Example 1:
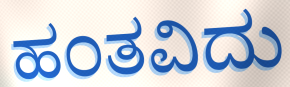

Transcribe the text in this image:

ಹಂತವಿದು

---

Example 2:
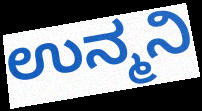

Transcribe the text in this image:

ಉನ್ಮನಿ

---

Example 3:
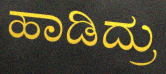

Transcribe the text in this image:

ಹಾಡಿದ್ರು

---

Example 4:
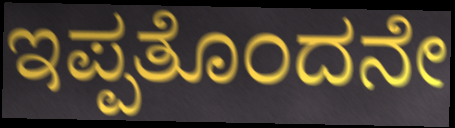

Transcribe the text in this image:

ಇಪ್ಪತೊಂದನೇ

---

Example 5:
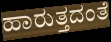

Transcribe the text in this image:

ಹಾರುತ್ತದಂತೆ